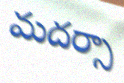
మదర్సా